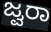
ಜ್ವರಾ